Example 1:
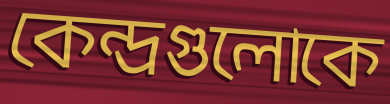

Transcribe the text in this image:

কেন্দ্রগুলোকে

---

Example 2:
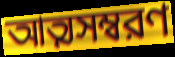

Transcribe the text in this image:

আত্মসম্বরণ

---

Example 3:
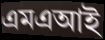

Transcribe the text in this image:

এমএআই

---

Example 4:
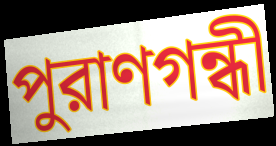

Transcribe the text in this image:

পুরাণগন্ধী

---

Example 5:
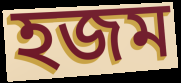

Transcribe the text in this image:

হজম